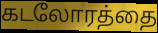
கடலோரத்தை